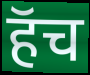
हॅच